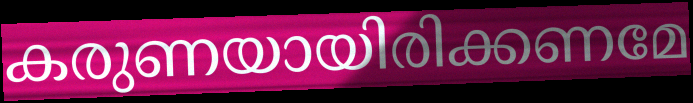
കരുണയായിരിക്കണമേ